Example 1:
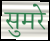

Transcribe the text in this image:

सुमरे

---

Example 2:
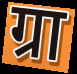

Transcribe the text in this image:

ग्रा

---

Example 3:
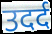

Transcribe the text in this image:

उदर्द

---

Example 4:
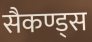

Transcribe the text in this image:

सैकण्ड्स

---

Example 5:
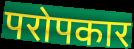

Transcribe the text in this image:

परोपकार